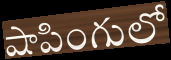
షాపింగులో